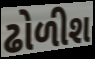
ઢોળીશ